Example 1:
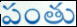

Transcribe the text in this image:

పంతు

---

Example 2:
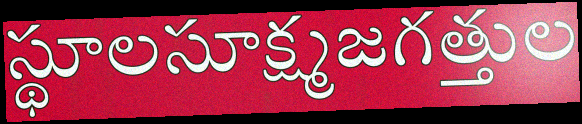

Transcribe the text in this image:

స్థూలసూక్ష్మజగత్తుల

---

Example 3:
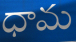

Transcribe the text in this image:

ధామ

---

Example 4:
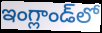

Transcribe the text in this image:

ఇంగ్లాండ్‌లో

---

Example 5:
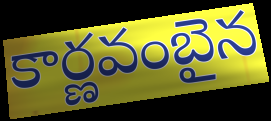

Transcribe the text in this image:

కార్ణవంబైన